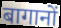
बागानों